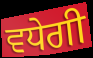
ਵਧੇਗੀ